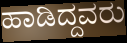
ಹಾಡಿದ್ದವರು